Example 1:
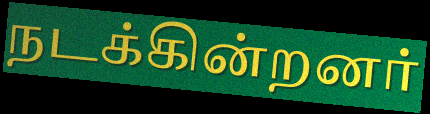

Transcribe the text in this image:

நடக்கின்றனர்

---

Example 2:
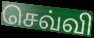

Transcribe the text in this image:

செவ்வி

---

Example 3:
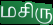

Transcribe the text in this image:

மசிரு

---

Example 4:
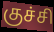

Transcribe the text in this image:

குச்சி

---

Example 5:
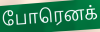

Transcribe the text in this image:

போரெனக்